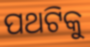
ପଥଟିକୁ